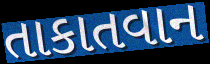
તાકાતવાન